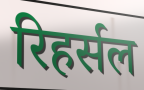
रिहर्सल